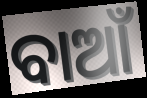
ବାଆଁ